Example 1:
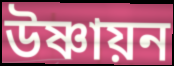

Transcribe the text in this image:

উষ্ণায়ন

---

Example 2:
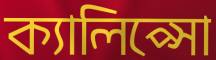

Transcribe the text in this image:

ক্যালিপ্সো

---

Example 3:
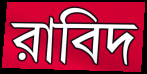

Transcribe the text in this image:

রাবিদ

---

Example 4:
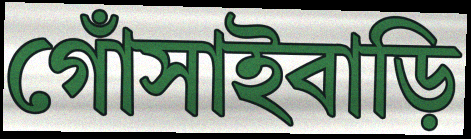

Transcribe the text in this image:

গোঁসাইবাড়ি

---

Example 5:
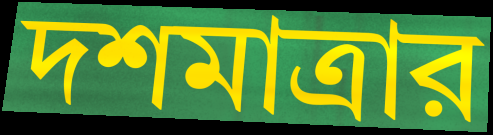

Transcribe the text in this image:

দশমাত্রার